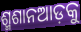
ଶ୍ମଶାନଆଡ଼କୁ